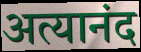
अत्यानंद